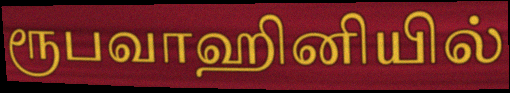
ரூபவாஹினியில்